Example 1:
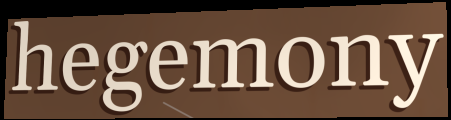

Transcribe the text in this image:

hegemony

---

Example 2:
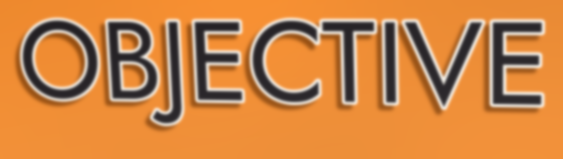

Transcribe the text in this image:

OBJECTIVE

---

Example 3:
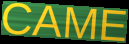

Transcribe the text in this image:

CAME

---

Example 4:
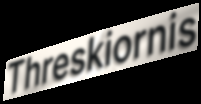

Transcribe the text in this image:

Threskiornis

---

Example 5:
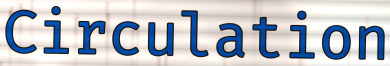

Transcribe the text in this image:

Circulation